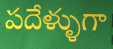
పదేళ్ళుగా